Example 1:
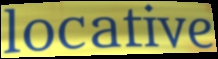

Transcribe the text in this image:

locative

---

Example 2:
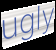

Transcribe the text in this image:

ugly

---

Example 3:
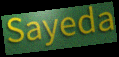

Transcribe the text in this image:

Sayeda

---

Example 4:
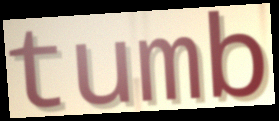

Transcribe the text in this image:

tumb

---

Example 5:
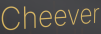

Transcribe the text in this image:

Cheever